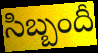
సిబ్బందీ